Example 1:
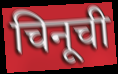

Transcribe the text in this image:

चिनूची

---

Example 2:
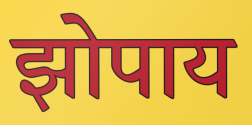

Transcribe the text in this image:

झोपाय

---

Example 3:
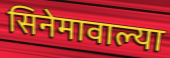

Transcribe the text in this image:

सिनेमावाल्या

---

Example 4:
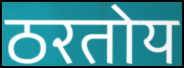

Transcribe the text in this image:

ठरतोय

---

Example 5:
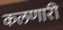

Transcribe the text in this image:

कलणारी